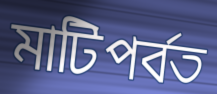
মাটিপৰ্বত